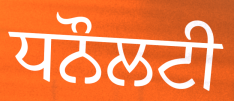
ਧਨੌਲਟੀ